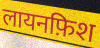
लायनफ़िश